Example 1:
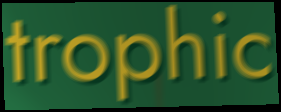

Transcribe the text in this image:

trophic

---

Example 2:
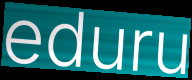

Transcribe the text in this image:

eduru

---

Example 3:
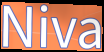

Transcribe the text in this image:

Niva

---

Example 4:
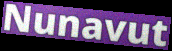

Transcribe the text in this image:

Nunavut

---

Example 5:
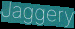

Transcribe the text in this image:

Jaggery